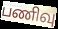
பணிவு